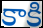
కాకి